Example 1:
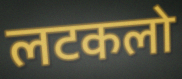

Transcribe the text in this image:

लटकलो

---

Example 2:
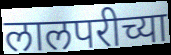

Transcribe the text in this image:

लालपरीच्या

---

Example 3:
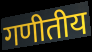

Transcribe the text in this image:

गणीतीय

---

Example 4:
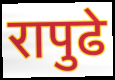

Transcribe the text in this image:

रापुढे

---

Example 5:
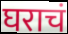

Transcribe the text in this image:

घराचं